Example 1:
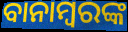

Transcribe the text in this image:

ବାନାମ୍ବରଙ୍କ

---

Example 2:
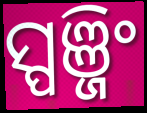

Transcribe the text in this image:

ସ୍ପଞ୍ଜିଂ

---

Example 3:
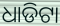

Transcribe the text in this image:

ଧାଡିଟା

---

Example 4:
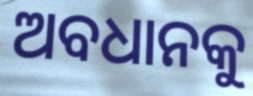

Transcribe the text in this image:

ଅବଧାନକୁ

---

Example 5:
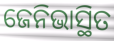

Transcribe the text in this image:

ଜେନିଭାସ୍ଥିତ